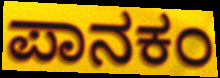
ಪಾನಕಂ